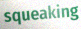
squeaking